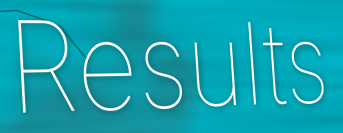
Results